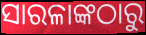
ସାରଳାଙ୍କଠାରୁ